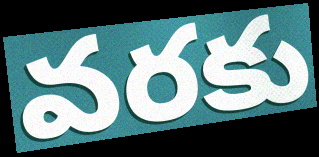
వరకు